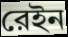
রেইন